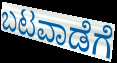
ಬಟವಾಡೆಗೆ